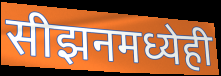
सीझनमध्येही